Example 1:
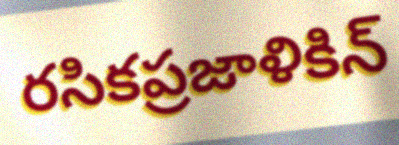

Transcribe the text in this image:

రసికప్రజాళికిన్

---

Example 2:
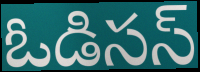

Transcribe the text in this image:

ఓడిసస్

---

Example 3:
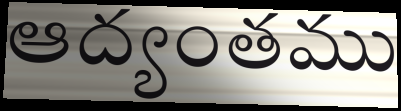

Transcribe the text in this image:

ఆద్యంతము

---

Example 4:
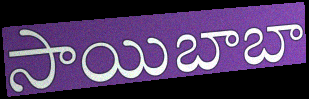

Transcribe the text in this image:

సాయిబాబా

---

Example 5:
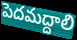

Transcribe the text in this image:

పెదమద్దాలి